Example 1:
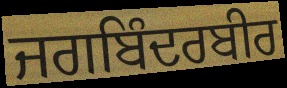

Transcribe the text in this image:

ਜਗਬਿੰਦਰਬੀਰ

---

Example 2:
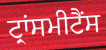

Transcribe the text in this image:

ਟ੍ਰਾਂਸਮੀਟੈਂਸ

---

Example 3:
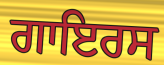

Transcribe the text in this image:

ਗਾਇਰਸ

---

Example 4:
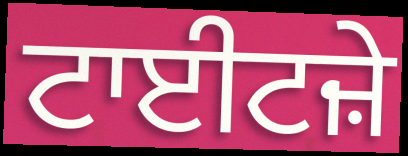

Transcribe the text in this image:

ਟਾਈਟਜ਼ੇ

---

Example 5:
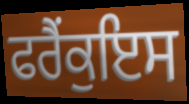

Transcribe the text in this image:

ਫਰੈਂਕੁਇਸ